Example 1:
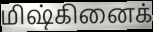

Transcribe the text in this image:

மிஷ்கினைக்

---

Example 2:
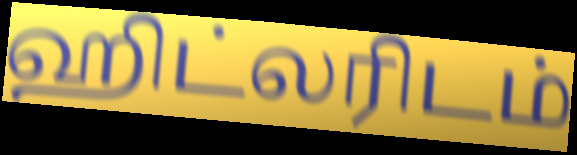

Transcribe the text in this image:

ஹிட்லரிடம்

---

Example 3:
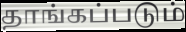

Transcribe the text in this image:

தாங்கப்படும்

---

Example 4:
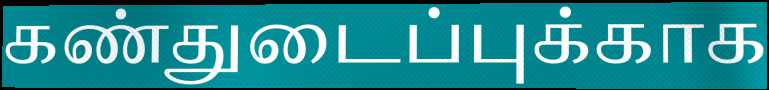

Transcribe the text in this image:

கண்துடைப்புக்காக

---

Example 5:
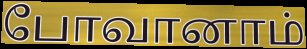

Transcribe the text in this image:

போவானாம்